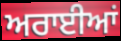
ਅਰਾਈਆਂ